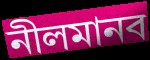
নীলমানব